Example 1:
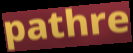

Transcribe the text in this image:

pathre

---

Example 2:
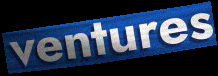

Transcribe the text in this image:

ventures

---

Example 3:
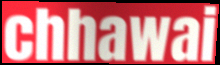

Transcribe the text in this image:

chhawai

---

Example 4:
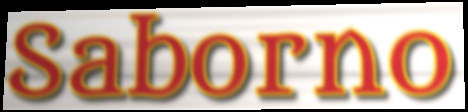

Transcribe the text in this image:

Saborno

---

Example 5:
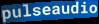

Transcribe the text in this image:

pulseaudio